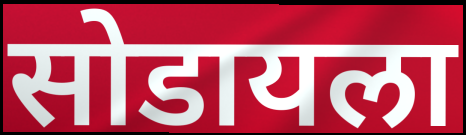
सोडायला